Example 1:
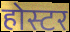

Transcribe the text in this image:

होस्टर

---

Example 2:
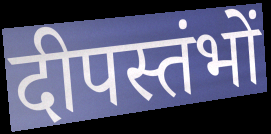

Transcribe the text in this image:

दीपस्तंभों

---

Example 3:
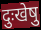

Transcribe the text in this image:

दुःखेषु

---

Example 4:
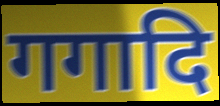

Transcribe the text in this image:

गगादि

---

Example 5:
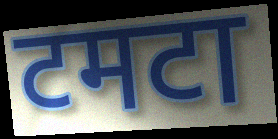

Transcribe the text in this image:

टमटा